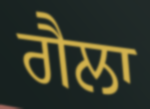
ਗੈਲਾ